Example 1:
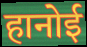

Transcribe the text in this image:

हानोई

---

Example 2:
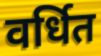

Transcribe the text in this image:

वर्धित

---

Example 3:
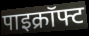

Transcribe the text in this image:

पाइक्रॉफ्ट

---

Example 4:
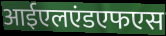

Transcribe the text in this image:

आईएलएंडएफएस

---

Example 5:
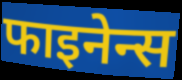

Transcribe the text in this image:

फाइनेन्स